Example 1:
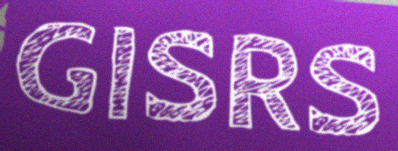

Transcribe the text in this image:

GISRS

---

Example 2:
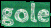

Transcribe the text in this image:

gole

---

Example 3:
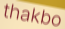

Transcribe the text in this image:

thakbo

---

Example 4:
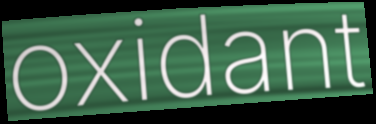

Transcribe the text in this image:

oxidant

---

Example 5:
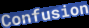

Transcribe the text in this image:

Confusion